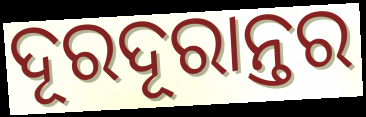
ଦୂରଦୂରାନ୍ତର